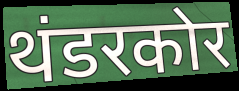
थंडरकोर